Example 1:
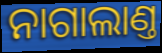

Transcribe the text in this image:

ନାଗାଲାଣ୍ତ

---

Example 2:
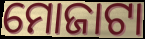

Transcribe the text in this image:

ମୋଜାଟା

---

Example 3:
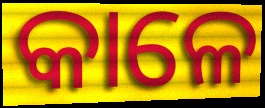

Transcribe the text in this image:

କାଳେ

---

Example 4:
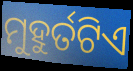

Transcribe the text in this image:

ମୁହୁର୍ତଟିଏ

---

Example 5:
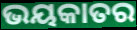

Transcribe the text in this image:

ଭୟକାତର